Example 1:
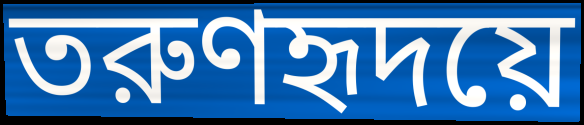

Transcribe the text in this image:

তরুণহৃদয়ে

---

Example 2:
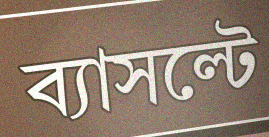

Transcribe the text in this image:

ব্যাসল্টে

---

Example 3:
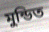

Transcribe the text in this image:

মুন্ডিত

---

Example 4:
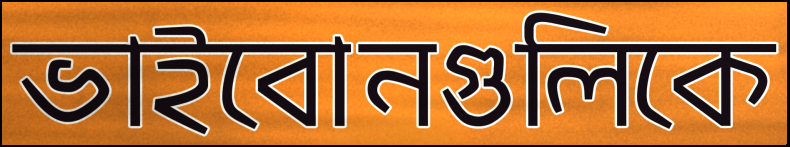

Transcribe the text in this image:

ভাইবোনগুলিকে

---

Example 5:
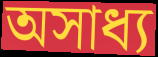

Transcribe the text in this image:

অসাধ্য